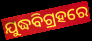
ଯୁଦ୍ଧବିଗ୍ରହରେ